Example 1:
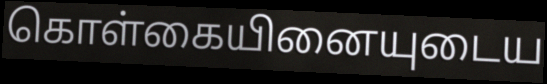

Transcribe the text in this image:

கொள்கையினையுடைய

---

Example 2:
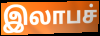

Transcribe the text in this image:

இலாபச்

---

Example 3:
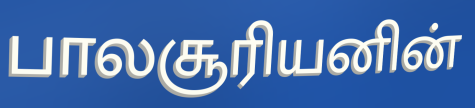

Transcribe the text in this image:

பாலசூரியனின்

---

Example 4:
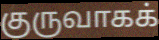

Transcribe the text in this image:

குருவாகக்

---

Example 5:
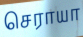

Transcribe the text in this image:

செராயா